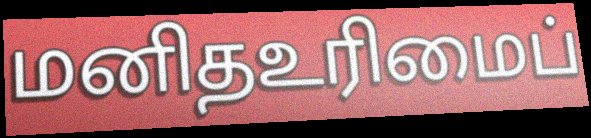
மனிதஉரிமைப்